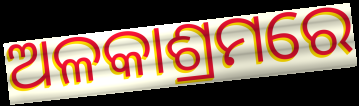
ଅଳକାଶ୍ରମରେ